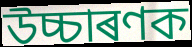
উচ্চাৰণক